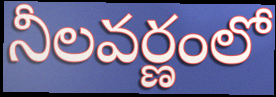
నీలవర్ణంలో